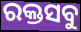
ରକ୍ତସବୁ